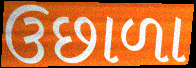
ઉછાળા